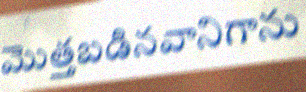
మొత్తబడినవానిగాను